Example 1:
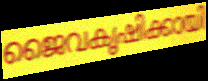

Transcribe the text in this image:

ജൈവകൃഷിക്കായി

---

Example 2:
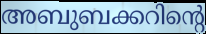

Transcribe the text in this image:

അബുബക്കറിന്റെ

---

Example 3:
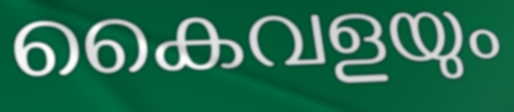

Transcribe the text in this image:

കൈവളയും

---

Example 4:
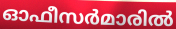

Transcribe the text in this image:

ഓഫീസർമാരിൽ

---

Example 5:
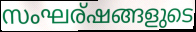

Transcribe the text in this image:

സംഘര്ഷങ്ങളുടെ